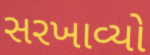
સરખાવ્યો